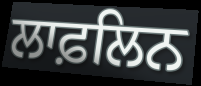
ਲਾਫ਼ਲਿਨ